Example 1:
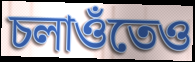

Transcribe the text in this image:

চলাওঁতেও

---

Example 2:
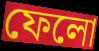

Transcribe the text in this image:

ফেলো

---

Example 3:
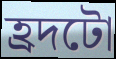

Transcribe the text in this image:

হ্ৰদটো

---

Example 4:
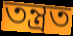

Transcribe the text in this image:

তন্ত্ৰত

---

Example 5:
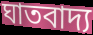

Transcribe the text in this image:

ঘাতবাদ্য